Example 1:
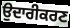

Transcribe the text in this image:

ਉਦਾਰੀਕਰਣ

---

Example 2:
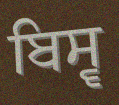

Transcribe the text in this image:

ਬਿਸ੍ਵ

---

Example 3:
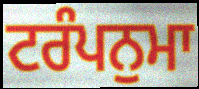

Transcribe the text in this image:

ਟਰੰਪਨੁਮਾ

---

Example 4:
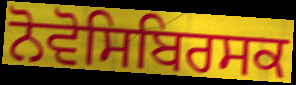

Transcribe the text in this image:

ਨੋਵੋਸਿਬਿਰਸਕ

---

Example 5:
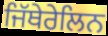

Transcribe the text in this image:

ਜਿੱਥੇਰੇਲਿਨ